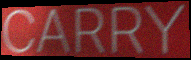
CARRY